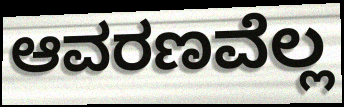
ಆವರಣವೆಲ್ಲ